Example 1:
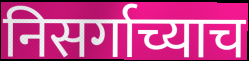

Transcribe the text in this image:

निसर्गाच्याच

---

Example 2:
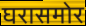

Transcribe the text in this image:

घरासमोर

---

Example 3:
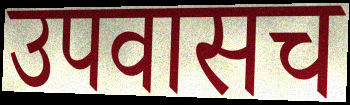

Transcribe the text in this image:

उपवासच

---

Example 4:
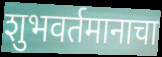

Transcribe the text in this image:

शुभवर्तमानाचा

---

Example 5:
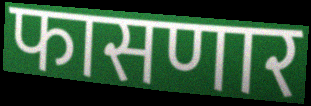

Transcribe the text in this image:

फासणार